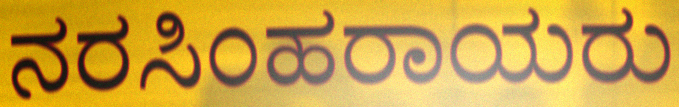
ನರಸಿಂಹರಾಯರು